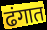
ढंगात